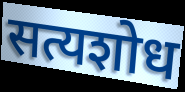
सत्यशोध